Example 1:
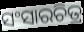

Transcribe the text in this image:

ସଂସାରଚିତ୍ର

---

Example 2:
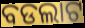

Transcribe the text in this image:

ବଡଲାଟ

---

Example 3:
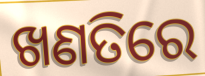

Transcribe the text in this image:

ଖଣତିରେ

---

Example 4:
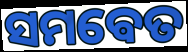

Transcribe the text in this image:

ସମଵେତ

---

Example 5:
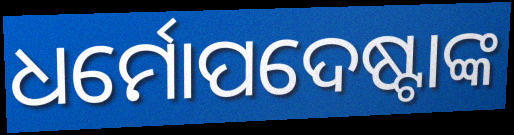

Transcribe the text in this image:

ଧର୍ମୋପଦେଷ୍ଟାଙ୍କ